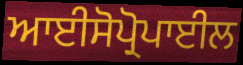
ਆਈਸੋਪ੍ਰੋਪਾਈਲ